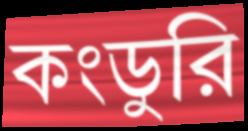
কংডুরি